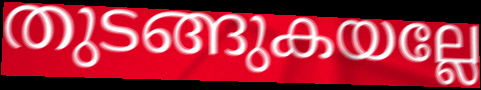
തുടങ്ങുകയല്ലേ